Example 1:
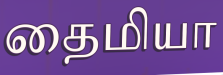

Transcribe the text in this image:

தைமியா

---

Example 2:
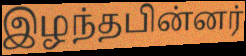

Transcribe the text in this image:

இழந்தபின்னர்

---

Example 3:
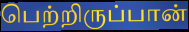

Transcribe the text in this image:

பெற்றிருப்பான்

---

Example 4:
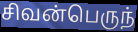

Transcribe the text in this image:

சிவன்பெருந்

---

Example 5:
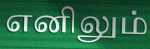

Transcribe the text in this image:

எனிலும்